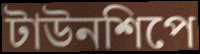
টাউনশিপে